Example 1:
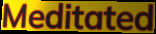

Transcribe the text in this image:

Meditated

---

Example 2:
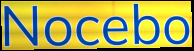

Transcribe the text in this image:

Nocebo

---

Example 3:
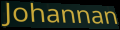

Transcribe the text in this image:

Johannan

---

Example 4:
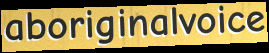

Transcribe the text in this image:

aboriginalvoice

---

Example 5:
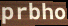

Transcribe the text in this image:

prbho